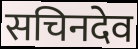
सचिनदेव